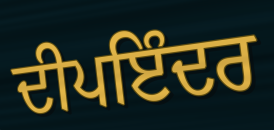
ਦੀਪਇੰਦਰ